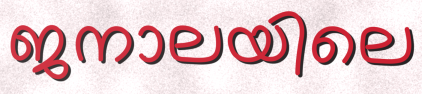
ജനാലയിലെ